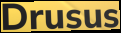
Drusus